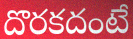
దొరకదంటే